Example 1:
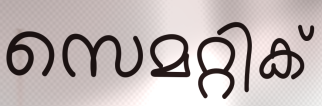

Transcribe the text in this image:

സെമറ്റിക്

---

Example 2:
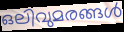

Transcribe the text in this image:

ഒലിവുമരങ്ങൾ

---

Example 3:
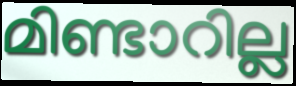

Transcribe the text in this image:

മിണ്ടാറില്ല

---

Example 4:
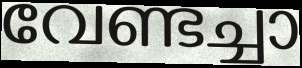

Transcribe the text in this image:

വേണ്ടച്ചാ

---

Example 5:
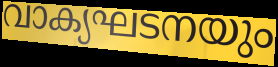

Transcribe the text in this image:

വാക്യഘടനയും